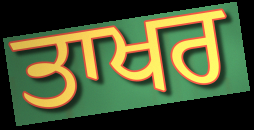
ਤਾਖਰ